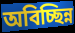
অবিচ্ছিন্ন